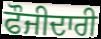
ਫੌਜੀਦਾਰੀ